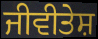
ਜੀਵੀਤੇਸ਼